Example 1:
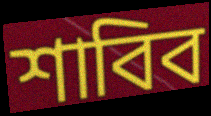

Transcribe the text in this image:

শাবিব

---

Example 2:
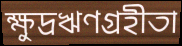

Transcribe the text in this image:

ক্ষুদ্রঋণগ্রহীতা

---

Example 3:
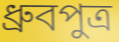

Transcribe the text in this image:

ধ্রুবপুত্র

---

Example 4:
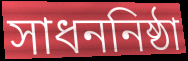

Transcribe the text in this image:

সাধননিষ্ঠা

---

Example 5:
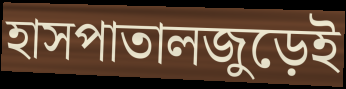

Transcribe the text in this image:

হাসপাতালজুড়েই